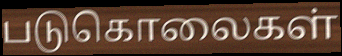
படுகொலைகள்